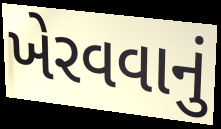
ખેરવવાનું